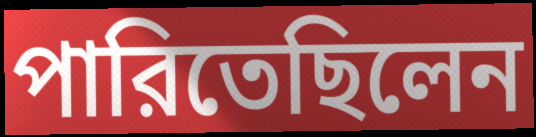
পারিতেছিলেন